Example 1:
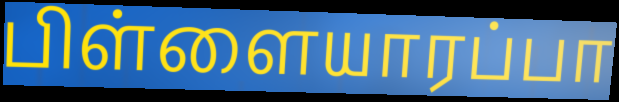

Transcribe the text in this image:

பிள்ளையாரப்பா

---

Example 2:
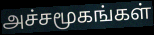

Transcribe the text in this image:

அச்சமூகங்கள்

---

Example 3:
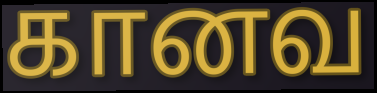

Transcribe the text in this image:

கானவ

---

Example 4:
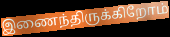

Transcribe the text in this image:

இணைந்திருக்கிறோம்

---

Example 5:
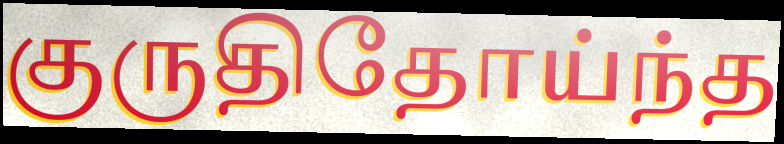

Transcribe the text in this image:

குருதிதோய்ந்த